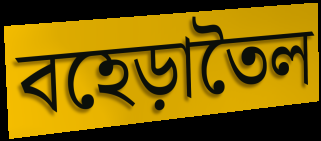
বহেড়াতৈল